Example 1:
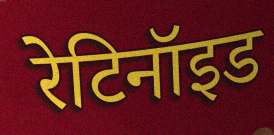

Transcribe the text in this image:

रेटिनॉइड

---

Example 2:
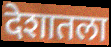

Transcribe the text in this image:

देशातला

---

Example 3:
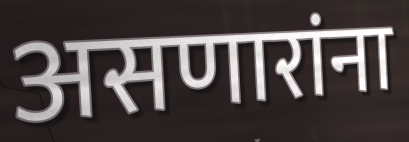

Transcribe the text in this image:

असणारांना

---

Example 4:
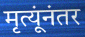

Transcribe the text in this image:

मृत्यूंनंतर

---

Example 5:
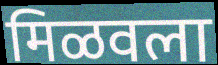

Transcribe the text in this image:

मिळवला